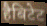
हैबिटेट